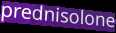
prednisolone